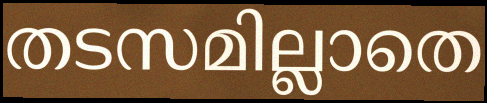
തടസമില്ലാതെ